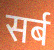
सर्ब